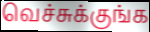
வெச்சுக்குங்க